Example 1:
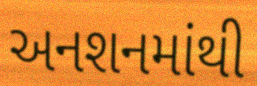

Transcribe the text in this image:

અનશનમાંથી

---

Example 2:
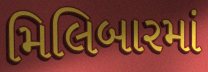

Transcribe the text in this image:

મિલિબારમાં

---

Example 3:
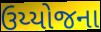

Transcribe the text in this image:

ઉય્યોજના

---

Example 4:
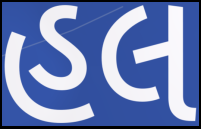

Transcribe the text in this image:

હલ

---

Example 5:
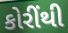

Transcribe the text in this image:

કોરીંથી